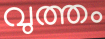
വുത്തം